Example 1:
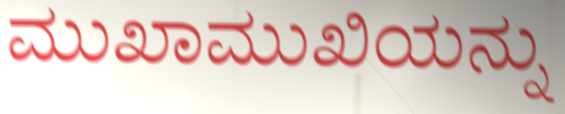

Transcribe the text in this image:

ಮುಖಾಮುಖಿಯನ್ನು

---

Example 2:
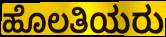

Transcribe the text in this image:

ಹೊಲತಿಯರು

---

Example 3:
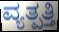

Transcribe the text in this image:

ವ್ಯತ್ಪತ್ತಿ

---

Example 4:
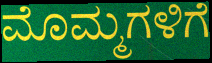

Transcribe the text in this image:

ಮೊಮ್ಮಗಳಿಗೆ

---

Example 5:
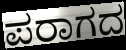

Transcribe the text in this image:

ಪರಾಗದ